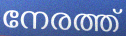
നേരത്ത്